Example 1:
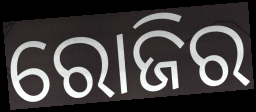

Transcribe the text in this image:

ରୋଜିର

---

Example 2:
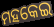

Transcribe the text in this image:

ମହକେଇ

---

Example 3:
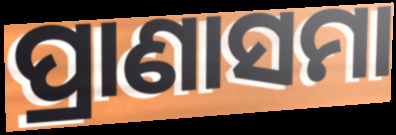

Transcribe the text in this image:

ପ୍ରାଣାସମା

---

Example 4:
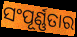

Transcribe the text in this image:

ସଂପୂର୍ଣ୍ଣତାର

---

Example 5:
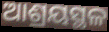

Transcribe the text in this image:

ଆଶ୍ରୟସ୍ଥଳ